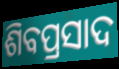
ଶିବପ୍ରସାଦ